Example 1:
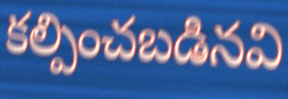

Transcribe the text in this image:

కల్పించబడినవి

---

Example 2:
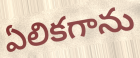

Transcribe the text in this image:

ఏలికగాను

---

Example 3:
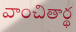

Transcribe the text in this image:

వాంచితార్థ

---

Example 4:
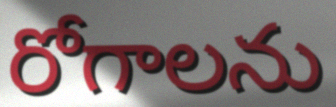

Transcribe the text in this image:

రోగాలను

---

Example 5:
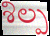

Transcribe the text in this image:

శిల్ప